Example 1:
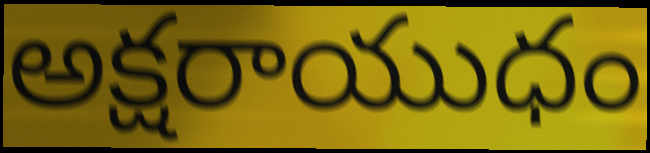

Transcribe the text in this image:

అక్షరాయుధం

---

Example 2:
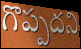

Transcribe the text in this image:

గొప్పదని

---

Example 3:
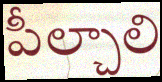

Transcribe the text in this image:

పీల్చాలి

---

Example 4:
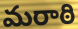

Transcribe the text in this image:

మరాఠి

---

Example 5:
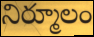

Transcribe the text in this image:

నిర్మూలం